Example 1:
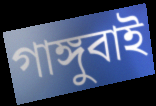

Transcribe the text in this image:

গাঙ্গুবাই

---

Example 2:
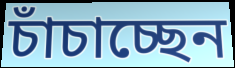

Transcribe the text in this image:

চাঁচাচ্ছেন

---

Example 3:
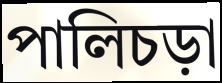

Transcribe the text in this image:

পালিচড়া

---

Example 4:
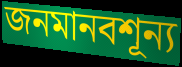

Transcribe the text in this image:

জনমানবশূন্য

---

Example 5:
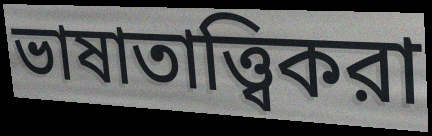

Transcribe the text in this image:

ভাষাতাত্ত্বিকরা